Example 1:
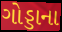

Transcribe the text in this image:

ગોડ્ડાના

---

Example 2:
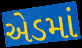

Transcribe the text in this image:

એડમાં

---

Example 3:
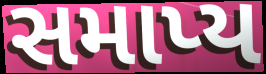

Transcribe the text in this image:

સમાપ્ય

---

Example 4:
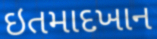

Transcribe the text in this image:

ઇતમાદખાન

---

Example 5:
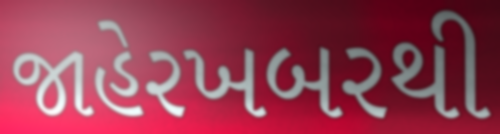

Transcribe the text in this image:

જાહેરખબરથી